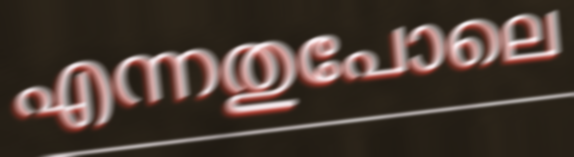
എന്നതുപോലെ